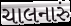
ચાલનારું